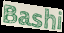
Bashi